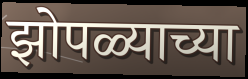
झोपळ्याच्या